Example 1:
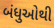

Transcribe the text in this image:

બંધુઓથી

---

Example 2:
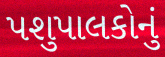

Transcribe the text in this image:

પશુપાલકોનું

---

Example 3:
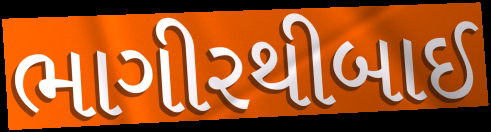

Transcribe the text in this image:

ભાગીરથીબાઈ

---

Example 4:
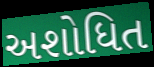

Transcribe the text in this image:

અશોધિત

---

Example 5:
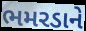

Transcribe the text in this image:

ભમરડાને